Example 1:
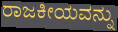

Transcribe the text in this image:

ರಾಜಕೀಯವನ್ನು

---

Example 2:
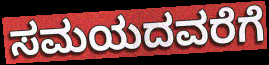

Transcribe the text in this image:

ಸಮಯದವರೆಗೆ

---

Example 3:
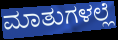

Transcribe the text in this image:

ಮಾತುಗಳಲ್ಲೆ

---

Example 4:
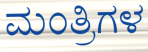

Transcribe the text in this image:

ಮಂತ್ರಿಗಳ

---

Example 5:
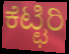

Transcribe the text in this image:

ಕೆಟ್ಟಿರಿ